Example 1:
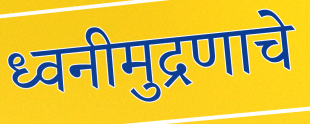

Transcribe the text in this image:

ध्वनीमुद्रणाचे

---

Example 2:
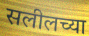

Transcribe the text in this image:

सलीलच्या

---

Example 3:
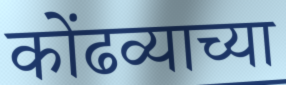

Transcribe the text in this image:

कोंढव्याच्या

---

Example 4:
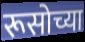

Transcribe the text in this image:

रूसोच्या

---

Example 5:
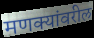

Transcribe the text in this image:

मणक्यांवरील